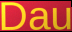
Dau